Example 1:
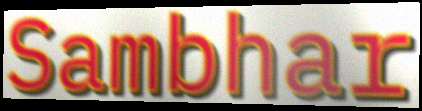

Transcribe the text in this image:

Sambhar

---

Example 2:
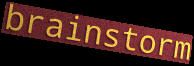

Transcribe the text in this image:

brainstorm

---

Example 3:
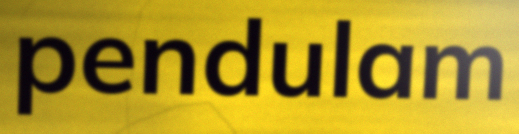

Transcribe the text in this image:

pendulam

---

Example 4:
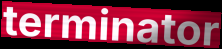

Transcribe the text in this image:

terminator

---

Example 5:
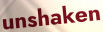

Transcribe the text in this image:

unshaken